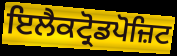
ਇਲੈਕਟ੍ਰੋਡਪੋਜ਼ਿਟ